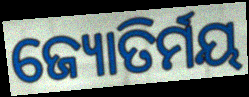
ଜ୍ୟୋତିର୍ମୟ